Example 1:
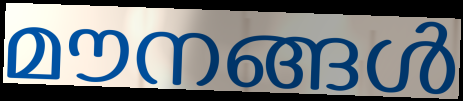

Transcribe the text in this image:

മൗനങ്ങൾ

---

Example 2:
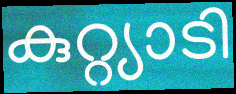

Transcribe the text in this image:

കുറ്റ്യാടി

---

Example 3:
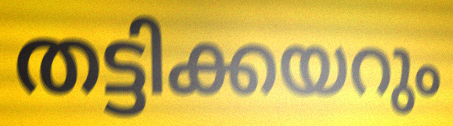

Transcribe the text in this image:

തട്ടിക്കയറും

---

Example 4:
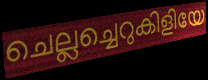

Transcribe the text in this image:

ചെല്ലച്ചെറുകിളിയേ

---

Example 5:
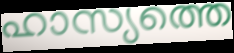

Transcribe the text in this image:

ഹാസ്യത്തെ